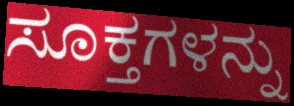
ಸೂಕ್ತಗಳನ್ನು